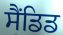
ਸੈਂਡਿਡ